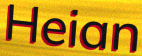
Heian